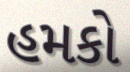
હમકો